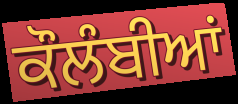
ਕੌਲੰਬੀਆਂ